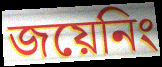
জয়েনিং